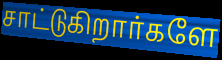
சாட்டுகிறார்களே